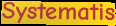
Systematis